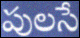
పులసే